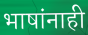
भाषांनाही